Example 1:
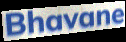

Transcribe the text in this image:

Bhavane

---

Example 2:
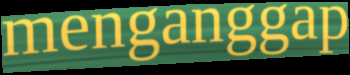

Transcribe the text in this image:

menganggap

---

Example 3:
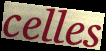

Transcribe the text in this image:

celles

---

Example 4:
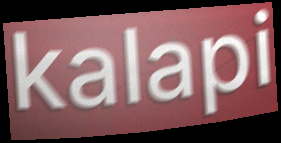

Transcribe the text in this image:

kalapi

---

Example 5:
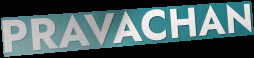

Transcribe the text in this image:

PRAVACHAN